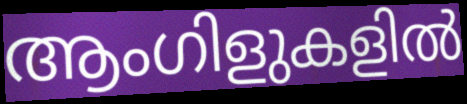
ആംഗിളുകളിൽ